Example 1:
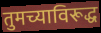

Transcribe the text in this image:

तुमच्याविरूद्ध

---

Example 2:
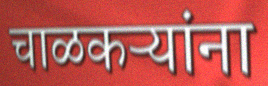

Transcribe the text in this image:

चाळकऱ्यांना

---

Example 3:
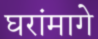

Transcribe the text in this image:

घरांमागे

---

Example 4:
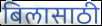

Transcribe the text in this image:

बिलासाठी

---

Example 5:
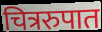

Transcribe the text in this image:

चित्ररुपात